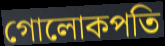
গোলোকপতি